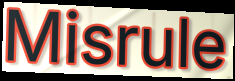
Misrule